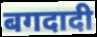
बगदादी